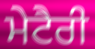
ਮੇਟੈਰੀ